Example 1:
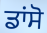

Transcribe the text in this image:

ਡਾਂਸੋ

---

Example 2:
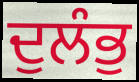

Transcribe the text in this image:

ਦੁਲੰਭੁ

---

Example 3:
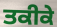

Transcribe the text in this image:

ਤਕੀਕੇ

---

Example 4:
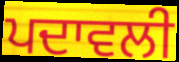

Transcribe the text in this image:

ਪਦਾਵਲੀ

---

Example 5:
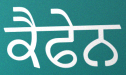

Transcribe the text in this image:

ਕੈਫੇਨ